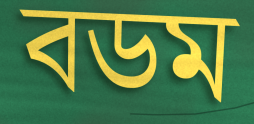
বডম